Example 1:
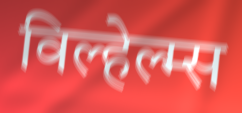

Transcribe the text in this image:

विल्हेल्म्स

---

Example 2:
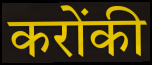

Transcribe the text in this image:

करोंकी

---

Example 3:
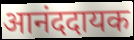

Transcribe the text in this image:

आनंददायक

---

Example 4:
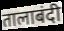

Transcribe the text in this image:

तालाबंदी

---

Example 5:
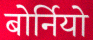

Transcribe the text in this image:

बोर्नियो